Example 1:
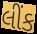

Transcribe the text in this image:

લીંક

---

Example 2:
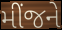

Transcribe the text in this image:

મીંજને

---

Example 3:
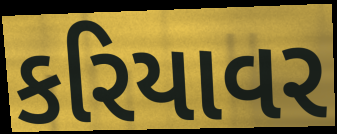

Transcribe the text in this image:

કરિયાવર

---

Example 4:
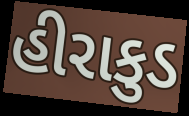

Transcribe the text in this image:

હીરાકુડ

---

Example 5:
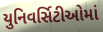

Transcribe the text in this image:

યુનિવર્સિટીઓમાં